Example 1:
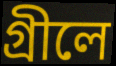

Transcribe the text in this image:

গ্রীলে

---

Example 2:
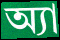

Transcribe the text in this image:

অ্যা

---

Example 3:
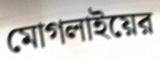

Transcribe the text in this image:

মোগলাইয়ের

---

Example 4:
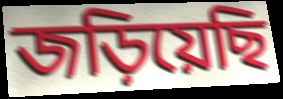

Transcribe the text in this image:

জড়িয়েছি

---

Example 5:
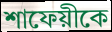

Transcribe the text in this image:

শাফেয়ীকে